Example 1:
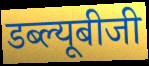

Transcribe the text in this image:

डब्ल्यूबीजी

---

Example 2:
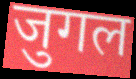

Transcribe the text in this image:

जुगल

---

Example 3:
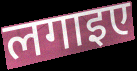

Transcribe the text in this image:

लगाइए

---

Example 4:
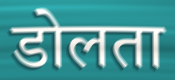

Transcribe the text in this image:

डोलता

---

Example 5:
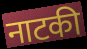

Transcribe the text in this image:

नाटकी